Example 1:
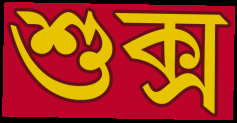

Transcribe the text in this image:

শুক্স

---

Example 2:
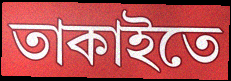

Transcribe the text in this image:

তাকাইতে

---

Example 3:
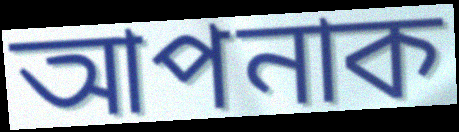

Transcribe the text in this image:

আপনাক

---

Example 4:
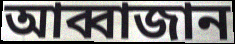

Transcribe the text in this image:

আব্বাজান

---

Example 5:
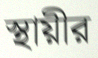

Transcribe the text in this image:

স্থায়ীর